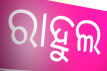
ରାହୁଲ